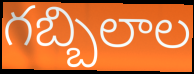
గబ్బిలాల